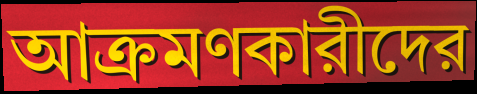
আক্রমণকারীদের